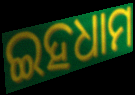
ଇହଧାମ